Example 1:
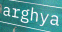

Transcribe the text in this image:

arghya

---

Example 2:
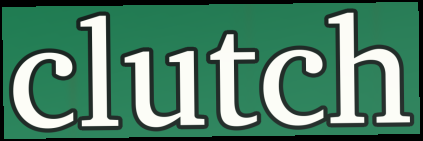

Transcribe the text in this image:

clutch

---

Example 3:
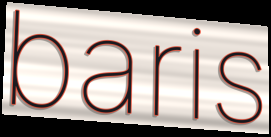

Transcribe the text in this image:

baris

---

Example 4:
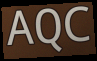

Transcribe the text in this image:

AQC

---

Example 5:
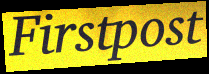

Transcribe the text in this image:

Firstpost